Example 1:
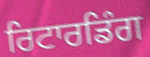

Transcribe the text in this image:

ਰਿਟਾਰਡਿੰਗ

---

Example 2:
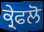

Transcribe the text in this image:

ਕ੍ਰੇਫਲੋ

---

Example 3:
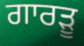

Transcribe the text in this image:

ਗਾਰੜੂ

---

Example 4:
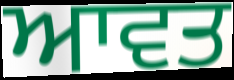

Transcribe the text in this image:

ਆਵਤ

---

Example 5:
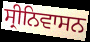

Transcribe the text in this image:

ਸ੍ਰੀਨਿਵਾਸਨ